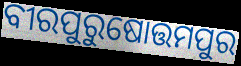
ବୀରପୁରୁଷୋତ୍ତମପୁର